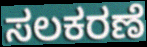
ಸಲಕರಣೆ